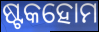
ଷ୍ଟକହୋମ